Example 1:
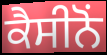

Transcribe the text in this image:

ਕੈਸੀਨੋਂ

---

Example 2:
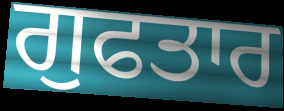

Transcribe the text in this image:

ਗੁਫਤਾਰ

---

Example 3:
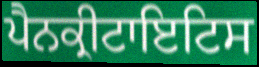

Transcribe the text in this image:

ਪੈਨਕ੍ਰੀਟਾਇਟਿਸ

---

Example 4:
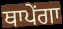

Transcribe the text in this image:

ਥਾਪੇਂਗਾ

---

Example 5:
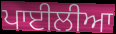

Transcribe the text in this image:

ਪਾਈਲੀਆ